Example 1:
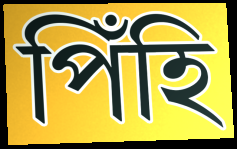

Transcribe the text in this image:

পিঁহি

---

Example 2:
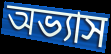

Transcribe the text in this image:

অভ্যাস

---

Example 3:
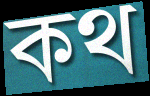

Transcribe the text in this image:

কথ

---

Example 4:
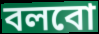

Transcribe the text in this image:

বলবো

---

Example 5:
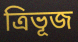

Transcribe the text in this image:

ত্ৰিভূজ